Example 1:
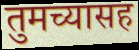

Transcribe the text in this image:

तुमच्यासह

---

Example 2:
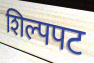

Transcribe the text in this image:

शिल्पपट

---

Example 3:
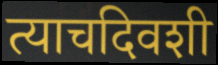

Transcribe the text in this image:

त्याचदिवशी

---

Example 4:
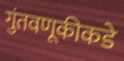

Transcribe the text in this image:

गुंतवणूकीकडे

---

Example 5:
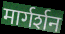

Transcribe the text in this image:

मार्गर्शन